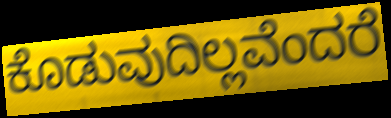
ಕೊಡುವುದಿಲ್ಲವೆಂದರೆ